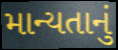
માન્યતાનું